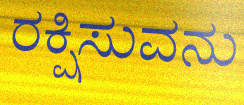
ರಕ್ಷಿಸುವನು